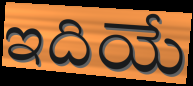
ఇదియే